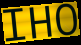
IHO